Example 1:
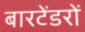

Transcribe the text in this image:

बारटेंडरों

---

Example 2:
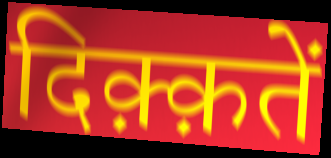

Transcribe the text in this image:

दिक़्क़तें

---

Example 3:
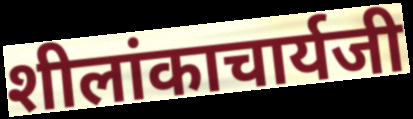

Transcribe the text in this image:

शीलांकाचार्यजी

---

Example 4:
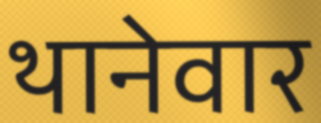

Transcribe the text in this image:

थानेवार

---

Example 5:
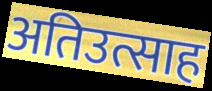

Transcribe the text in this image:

अतिउत्साह